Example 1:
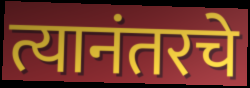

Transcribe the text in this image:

त्यानंतरचे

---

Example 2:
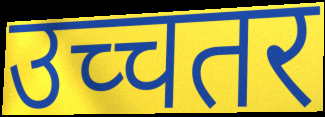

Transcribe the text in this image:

उच्चतर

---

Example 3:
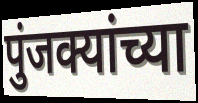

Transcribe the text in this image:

पुंजक्यांच्या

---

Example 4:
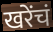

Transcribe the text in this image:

खरेंचं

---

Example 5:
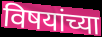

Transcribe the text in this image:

विषयांच्या